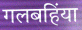
गलबहिंया